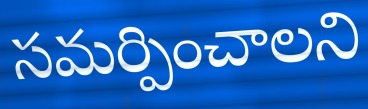
సమర్పించాలని